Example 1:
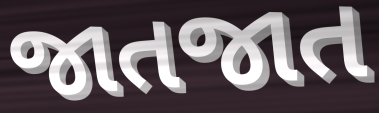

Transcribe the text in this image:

જાતજાત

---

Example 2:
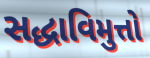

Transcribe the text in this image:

સદ્ધાવિમુત્તો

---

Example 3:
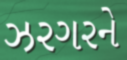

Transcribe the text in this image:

ઝરગરને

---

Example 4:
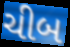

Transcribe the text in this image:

ચીબ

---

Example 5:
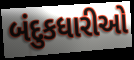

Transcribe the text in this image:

બંદુકધારીઓ